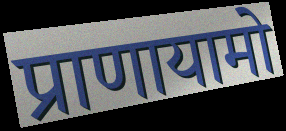
प्राणायामो